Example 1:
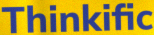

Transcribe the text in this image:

Thinkific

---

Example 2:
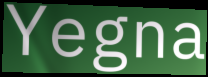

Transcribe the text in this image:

Yegna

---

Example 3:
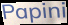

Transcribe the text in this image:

Papini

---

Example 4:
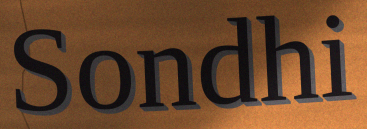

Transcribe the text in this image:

Sondhi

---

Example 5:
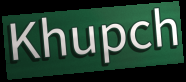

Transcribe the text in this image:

Khupch